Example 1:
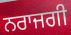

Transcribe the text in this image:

ਨਰਾਜਗੀ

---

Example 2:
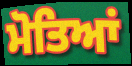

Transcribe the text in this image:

ਮੋਤਿਆਂ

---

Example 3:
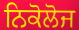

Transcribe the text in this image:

ਨਿਕੋਲੋਜ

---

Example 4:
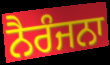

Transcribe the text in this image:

ਨੈਰੰਜਨਾ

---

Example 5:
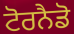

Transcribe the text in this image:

ਟੋਰਨੈਡੋ